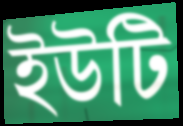
ইউটি